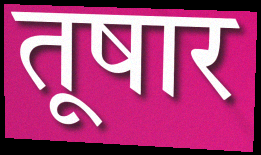
तूषार